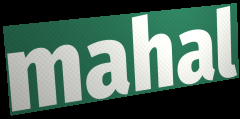
mahal